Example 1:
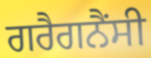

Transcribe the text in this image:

ਗਰੈਗਨੈਂਸੀ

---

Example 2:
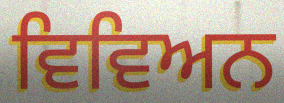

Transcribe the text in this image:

ਵਿਵਿਅਨ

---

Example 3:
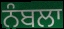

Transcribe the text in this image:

ਨੰਬਲਾ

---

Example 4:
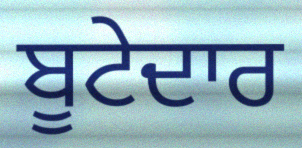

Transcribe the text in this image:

ਬੂਟੇਦਾਰ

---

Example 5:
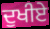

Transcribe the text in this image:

ਦੁਖੀਏ